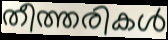
തീത്തരികൾ